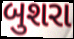
બુશરા